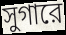
সুগারে